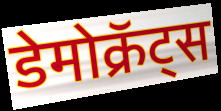
डेमोक्रॅट्स